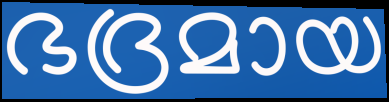
ഭദ്രമായ